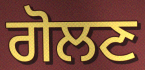
ਗੋਲਣ